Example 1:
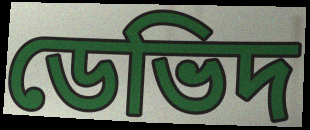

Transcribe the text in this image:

ডেভিদ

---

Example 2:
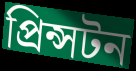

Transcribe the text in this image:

প্ৰিন্সটন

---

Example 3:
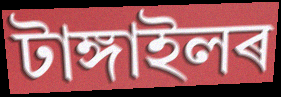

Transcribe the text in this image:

টাঙ্গাইলৰ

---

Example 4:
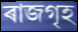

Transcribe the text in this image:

ৰাজগৃহ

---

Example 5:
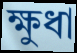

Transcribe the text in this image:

ক্ষুধা